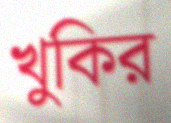
খুকির